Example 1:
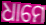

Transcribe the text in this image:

ଧାମେ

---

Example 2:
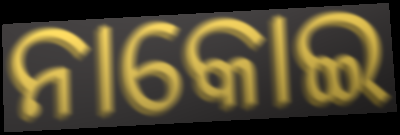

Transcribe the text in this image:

ନାକୋଇ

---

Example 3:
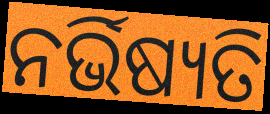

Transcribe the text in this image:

ନର୍ଭିଷ୍ୟତି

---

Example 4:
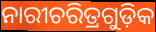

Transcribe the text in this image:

ନାରୀଚରିତ୍ରଗୁଡ଼ିକ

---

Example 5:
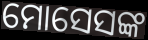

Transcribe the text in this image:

ମୋସେସଙ୍କ